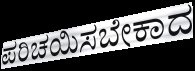
ಪರಿಚಯಿಸಬೇಕಾದ